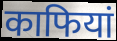
काफियां